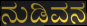
ನುಡಿವನ